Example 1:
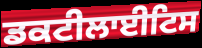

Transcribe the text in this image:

ਡਕਟੀਲਾਈਟਿਸ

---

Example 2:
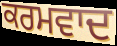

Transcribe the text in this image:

ਕਰਮਵਾਦ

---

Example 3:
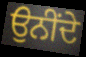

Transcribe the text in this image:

ਉਨੀਂਦੇ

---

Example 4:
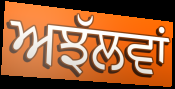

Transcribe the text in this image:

ਅਝੱਲਵਾਂ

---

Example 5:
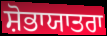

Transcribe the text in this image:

ਸ਼ੋਭਾਯਾਤਰਾ